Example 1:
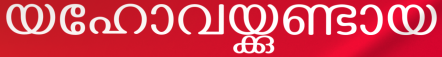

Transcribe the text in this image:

യഹോവയ്ക്കുണ്ടായ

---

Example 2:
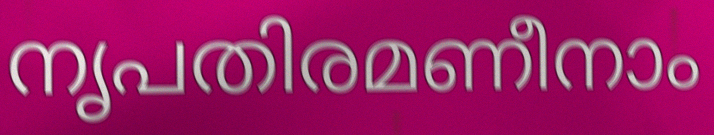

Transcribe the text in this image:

നൃപതിരമണീനാം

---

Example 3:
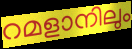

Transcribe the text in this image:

റമളാനിലും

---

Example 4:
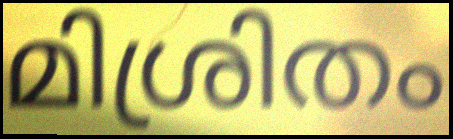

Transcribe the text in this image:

മിശ്രിതം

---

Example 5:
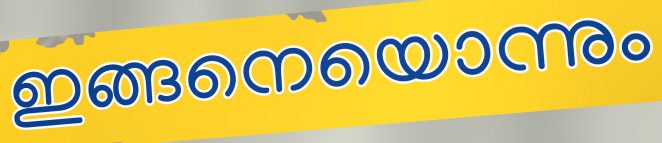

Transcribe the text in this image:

ഇങ്ങനെയൊന്നും